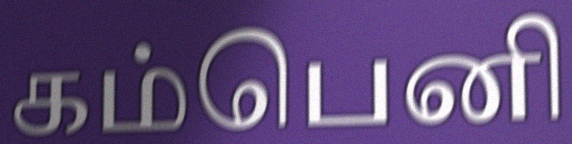
கம்பெனி